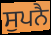
ਸੁਪਨੈ